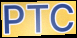
PTC